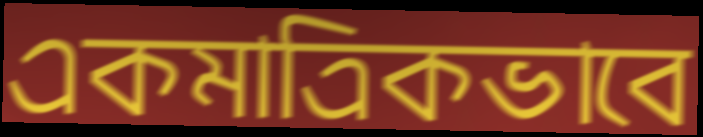
একমাত্রিকভাবে